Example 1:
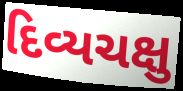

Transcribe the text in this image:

દિવ્યચક્ષુ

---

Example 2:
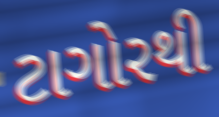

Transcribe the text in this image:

ટાગોરથી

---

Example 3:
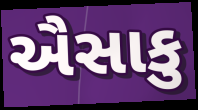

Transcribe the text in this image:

ઐસાકુ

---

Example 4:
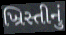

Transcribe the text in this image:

ખ્રિસ્તીનું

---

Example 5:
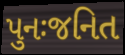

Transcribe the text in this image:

પુનઃજનિત